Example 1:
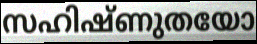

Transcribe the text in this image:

സഹിഷ്ണുതയോ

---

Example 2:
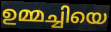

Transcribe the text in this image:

ഉമ്മച്ചിയെ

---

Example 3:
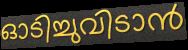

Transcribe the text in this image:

ഓടിച്ചുവിടാൻ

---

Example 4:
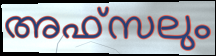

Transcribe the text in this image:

അഫ്സലും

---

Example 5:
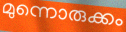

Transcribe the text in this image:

മുന്നൊരുക്കം